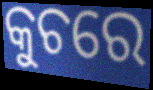
କୁଚରେ